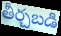
తీర్చబడి